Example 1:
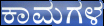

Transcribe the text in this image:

ಕಾಮಗಳ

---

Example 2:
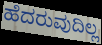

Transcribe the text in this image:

ಹೆದರುವುದಿಲ್ಲ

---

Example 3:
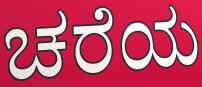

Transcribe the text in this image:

ಚರೆಯ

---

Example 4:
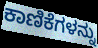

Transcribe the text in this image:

ಕಾಣಿಕೆಗಳನ್ನು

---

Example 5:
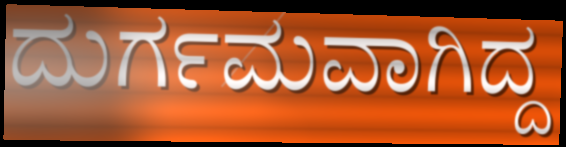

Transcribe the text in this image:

ದುರ್ಗಮವಾಗಿದ್ದ